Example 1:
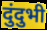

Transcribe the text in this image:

दुंदुभी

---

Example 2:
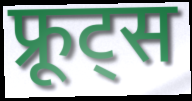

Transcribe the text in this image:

फ्रूट्स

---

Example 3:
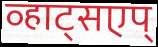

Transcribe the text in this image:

व्हाट्सएप्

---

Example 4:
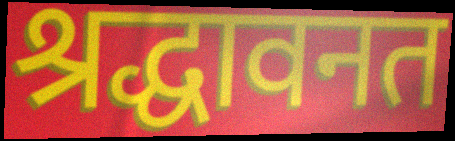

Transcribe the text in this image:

श्रद्धावनत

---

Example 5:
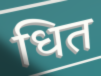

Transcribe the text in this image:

धित